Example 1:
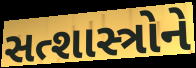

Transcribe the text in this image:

સત્શાસ્ત્રોને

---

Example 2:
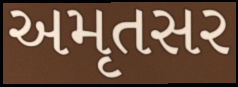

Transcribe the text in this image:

અમૃતસર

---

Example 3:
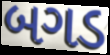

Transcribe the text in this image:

બગડ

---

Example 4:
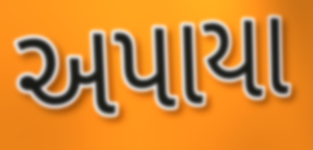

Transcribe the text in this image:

અપાયા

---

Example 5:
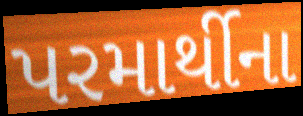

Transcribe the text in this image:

પરમાર્થીના